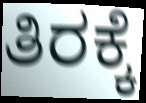
ತಿರಕ್ಕೆ